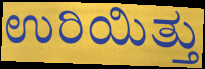
ಉರಿಯಿತ್ತು